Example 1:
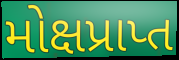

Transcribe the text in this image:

મોક્ષપ્રાપ્ત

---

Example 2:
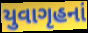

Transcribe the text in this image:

યુવાગૃહનાં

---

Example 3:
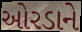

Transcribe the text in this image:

ઓરડાને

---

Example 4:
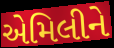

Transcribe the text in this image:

એમિલીને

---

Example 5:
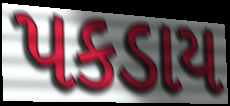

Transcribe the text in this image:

પકડાય